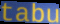
tabu